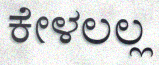
ಕೇಳಲಲ್ಲ